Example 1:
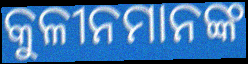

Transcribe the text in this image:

କୁଳୀନମାନଙ୍କ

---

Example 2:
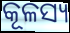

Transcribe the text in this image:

କୂଳସ୍ଯ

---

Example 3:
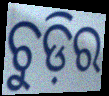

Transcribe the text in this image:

ଚୁଡ଼ିର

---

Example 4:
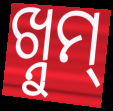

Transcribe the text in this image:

ଖ୍ନୁମ୍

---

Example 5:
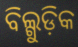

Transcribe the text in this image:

ବିଲ୍ଗୁଡ଼ିକ